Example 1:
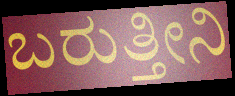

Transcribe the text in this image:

ಬರುತ್ತೀನಿ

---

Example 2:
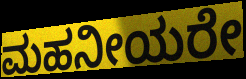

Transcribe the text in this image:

ಮಹನೀಯರೇ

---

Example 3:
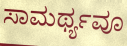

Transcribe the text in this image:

ಸಾಮರ್ಥ್ಯವೂ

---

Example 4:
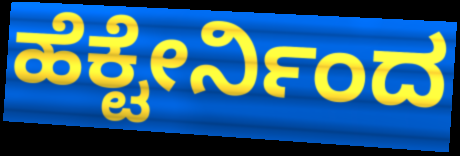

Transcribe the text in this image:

ಹೆಕ್ಟೇರ್ನಿಂದ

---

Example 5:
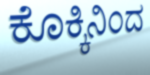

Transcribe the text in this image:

ಕೊಕ್ಕಿನಿಂದ